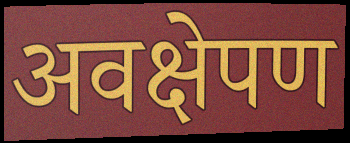
अवक्षेपण